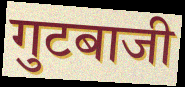
गुटबाजी